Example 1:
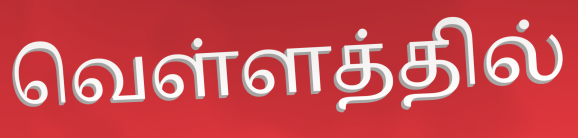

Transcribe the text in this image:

வெள்ளத்தில்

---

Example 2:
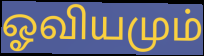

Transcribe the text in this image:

ஓவியமும்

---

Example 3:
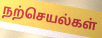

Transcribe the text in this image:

நற்செயல்கள்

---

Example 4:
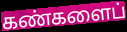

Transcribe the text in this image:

கண்களைப்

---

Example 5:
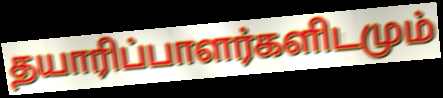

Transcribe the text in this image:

தயாரிப்பாளர்களிடமும்